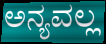
ಅನ್ಯವಲ್ಲ